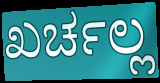
ಖರ್ಚಲ್ಲ